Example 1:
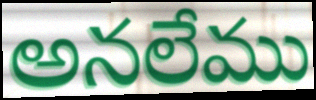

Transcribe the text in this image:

అనలేము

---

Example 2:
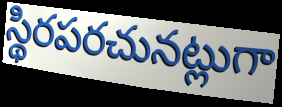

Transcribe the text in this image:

స్థిరపరచునట్లుగా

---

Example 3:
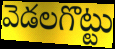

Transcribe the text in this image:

వెడలగొట్టు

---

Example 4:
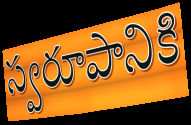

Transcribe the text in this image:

స్వరూపానికి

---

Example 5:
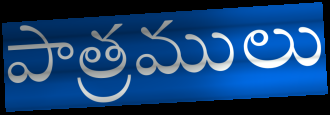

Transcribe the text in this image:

పాత్రములు